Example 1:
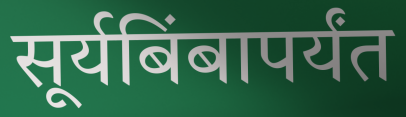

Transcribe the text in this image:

सूर्यबिंबापर्यंत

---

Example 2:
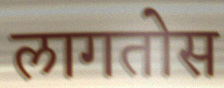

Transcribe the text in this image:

लागतोस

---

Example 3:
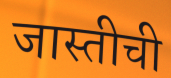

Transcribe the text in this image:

जास्तीची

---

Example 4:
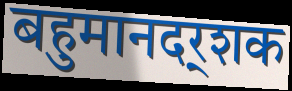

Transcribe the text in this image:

बहुमानदर्शक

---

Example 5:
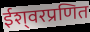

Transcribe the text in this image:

ईश्वरप्रणित